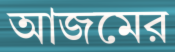
আজমের